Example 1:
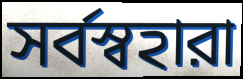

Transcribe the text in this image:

সর্বস্বহারা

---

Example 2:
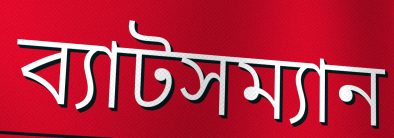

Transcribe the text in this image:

ব্যাটসম্যান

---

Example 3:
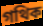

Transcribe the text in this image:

গথিক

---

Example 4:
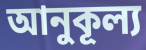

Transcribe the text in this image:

আনুকূল্য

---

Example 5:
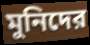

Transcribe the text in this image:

মুনিদের